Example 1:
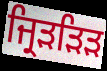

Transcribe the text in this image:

ਜ੍ਰਿੜੜਿੜ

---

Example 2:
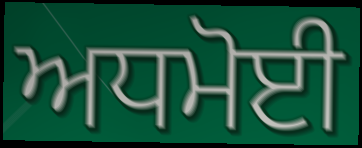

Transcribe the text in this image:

ਅਧਮੋਈ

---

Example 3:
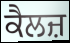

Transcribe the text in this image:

ਕੈਲਜ਼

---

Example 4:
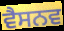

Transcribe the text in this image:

ਵੈਸਨਵ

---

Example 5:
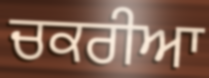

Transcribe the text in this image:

ਚਕਰੀਆ